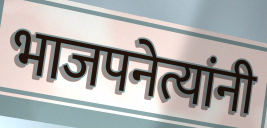
भाजपनेत्यांनी